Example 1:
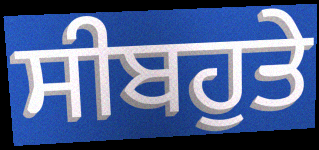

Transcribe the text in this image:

ਸੀਬਹੁਤੇ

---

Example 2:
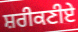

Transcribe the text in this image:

ਸ਼ਰੀਕਣੀਏ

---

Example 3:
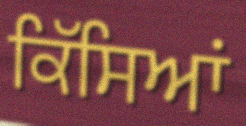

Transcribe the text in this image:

ਕਿੱਸਿਆਂ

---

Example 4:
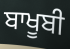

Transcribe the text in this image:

ਬਾਖੂਬੀ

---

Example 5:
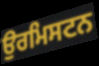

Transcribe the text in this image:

ਉਰਮਿਸਟਨ